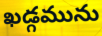
ఖడ్గమును